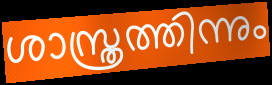
ശാസ്ത്രത്തിന്നും